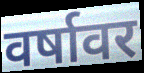
वर्षावर